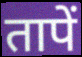
तापें